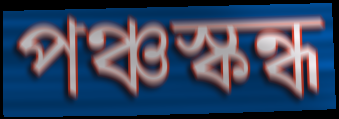
পঞ্চস্কন্ধ